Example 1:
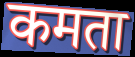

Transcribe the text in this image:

कमता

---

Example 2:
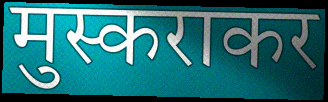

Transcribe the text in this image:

मुस्कराकर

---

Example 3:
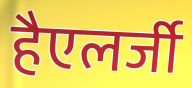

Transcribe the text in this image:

हैएलर्जी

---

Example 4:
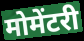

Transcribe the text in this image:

मोमेंटरी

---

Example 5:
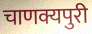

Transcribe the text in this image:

चाणक्यपुरी